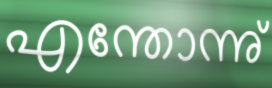
എന്തോന്നു്